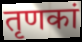
तृणकां